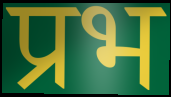
प्रभ